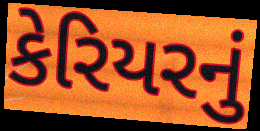
કેરિયરનું